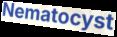
Nematocyst